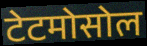
टेटमोसोल